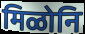
मिळोनि